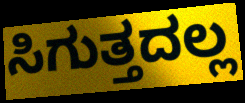
ಸಿಗುತ್ತದಲ್ಲ